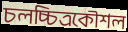
চলচ্চিত্রকৌশল